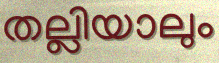
തല്ലിയാലും